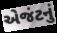
એજંટનું